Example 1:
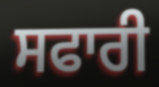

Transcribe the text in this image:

ਸਫਾਰੀ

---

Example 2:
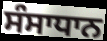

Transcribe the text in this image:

ਸੰਸਾਧਾਨ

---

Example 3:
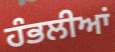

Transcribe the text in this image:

ਹੰਭਲੀਆਂ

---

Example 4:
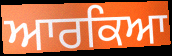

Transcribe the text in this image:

ਆਰਕਿਆ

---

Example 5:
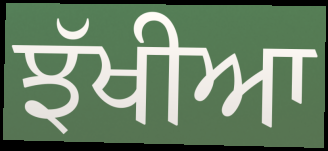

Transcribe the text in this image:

ਝੱਖੀਆ